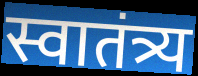
स्वातंत्र्य